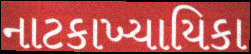
નાટકાખ્યાયિકા